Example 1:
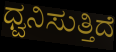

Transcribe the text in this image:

ಧ್ವನಿಸುತ್ತಿದೆ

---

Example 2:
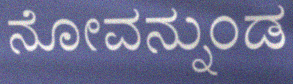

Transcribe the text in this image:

ನೋವನ್ನುಂಡ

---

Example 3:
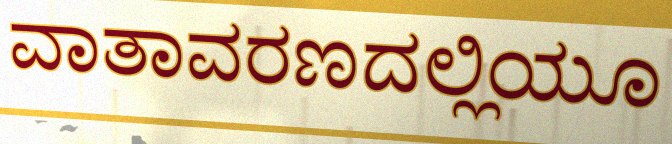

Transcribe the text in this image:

ವಾತಾವರಣದಲ್ಲಿಯೂ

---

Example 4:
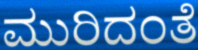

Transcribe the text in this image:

ಮುರಿದಂತೆ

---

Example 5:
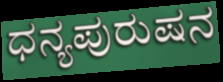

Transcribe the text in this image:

ಧನ್ಯಪುರುಷನ